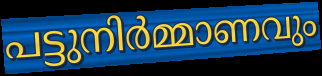
പട്ടുനിർമ്മാണവും